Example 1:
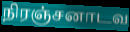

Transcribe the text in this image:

நிரஞ்சனாடவ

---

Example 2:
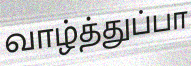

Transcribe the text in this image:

வாழ்த்துப்பா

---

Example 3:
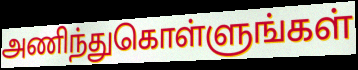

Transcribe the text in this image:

அணிந்துகொள்ளுங்கள்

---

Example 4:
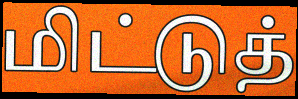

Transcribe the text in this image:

மிட்டுத்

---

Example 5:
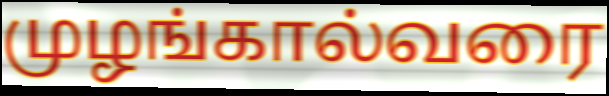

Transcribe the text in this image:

முழங்கால்வரை